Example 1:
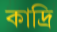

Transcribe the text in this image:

কাদ্রি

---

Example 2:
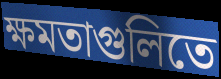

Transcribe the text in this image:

ক্ষমতাগুলিতে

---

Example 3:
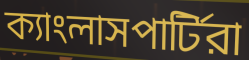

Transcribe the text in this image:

ক্যাংলাসপার্টিরা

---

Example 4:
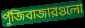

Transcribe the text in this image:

পুঁজিবাজারগুলো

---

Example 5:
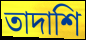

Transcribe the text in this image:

তাদাশি